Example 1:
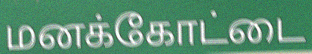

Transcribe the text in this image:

மனக்கோட்டை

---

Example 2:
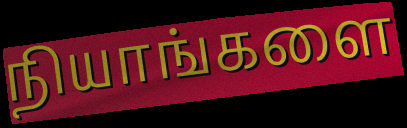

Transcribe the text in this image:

நியாங்களை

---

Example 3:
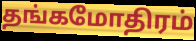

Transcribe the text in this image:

தங்கமோதிரம்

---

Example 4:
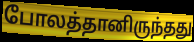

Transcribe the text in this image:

போலத்தானிருந்தது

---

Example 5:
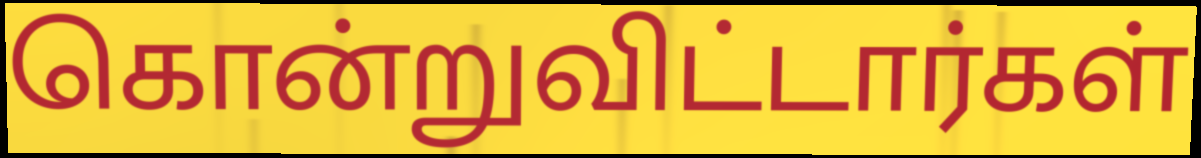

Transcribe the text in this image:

கொன்றுவிட்டார்கள்